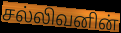
சல்லிவனின்